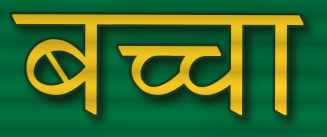
बच्‍चा